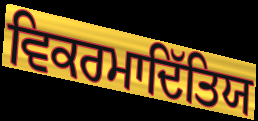
ਵਿਕਰਮਾਦਿੱਤਿਯ